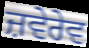
ਜ਼ਵੇਰੇਵ